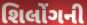
શિલોંગની